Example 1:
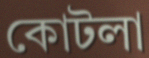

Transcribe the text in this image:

কোটলা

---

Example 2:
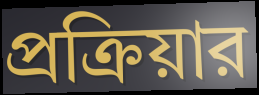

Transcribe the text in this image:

প্রক্রিয়ার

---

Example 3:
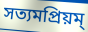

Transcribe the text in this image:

সত্যমপ্রিয়ম্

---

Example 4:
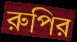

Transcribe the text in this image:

রুপির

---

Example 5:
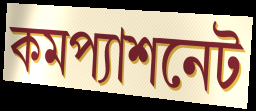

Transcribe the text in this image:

কমপ্যাশনেট